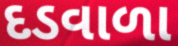
દડવાળા